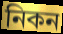
নিকন